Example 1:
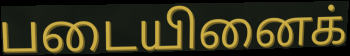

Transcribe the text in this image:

படையினைக்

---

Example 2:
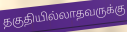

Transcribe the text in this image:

தகுதியில்லாதவருக்கு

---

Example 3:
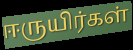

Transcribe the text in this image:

ஈருயிர்கள்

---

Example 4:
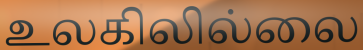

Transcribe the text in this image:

உலகிலில்லை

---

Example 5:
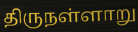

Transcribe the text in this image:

திருநள்ளாறு